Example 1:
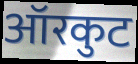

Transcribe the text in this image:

ऑरकुट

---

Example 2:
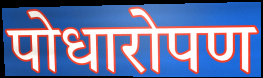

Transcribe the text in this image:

पोधारोपण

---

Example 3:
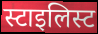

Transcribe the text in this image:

स्टाइलिस्ट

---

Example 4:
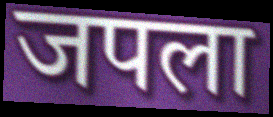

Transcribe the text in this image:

जपला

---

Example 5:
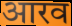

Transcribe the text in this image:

आरव